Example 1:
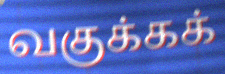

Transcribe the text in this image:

வகுக்கக்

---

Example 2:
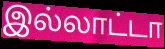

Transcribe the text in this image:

இல்லாட்டா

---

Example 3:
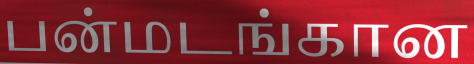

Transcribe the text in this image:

பன்மடங்கான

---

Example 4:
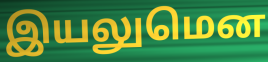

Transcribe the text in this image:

இயலுமென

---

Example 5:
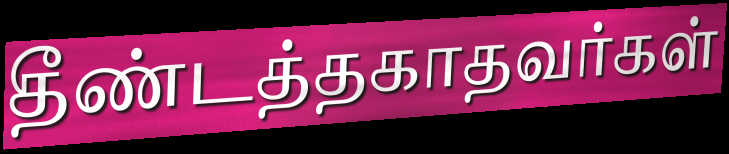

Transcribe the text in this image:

தீண்டத்தகாதவர்கள்